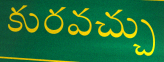
కురవచ్చు